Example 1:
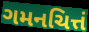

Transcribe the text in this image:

ગમનચિત્તં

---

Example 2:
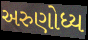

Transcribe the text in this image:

અરુણોધ્ય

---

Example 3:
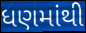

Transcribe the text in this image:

ધણમાંથી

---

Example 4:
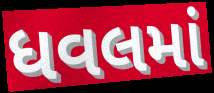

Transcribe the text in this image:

ધવલમાં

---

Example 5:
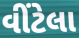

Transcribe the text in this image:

વીંટેલા